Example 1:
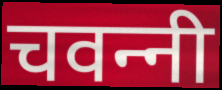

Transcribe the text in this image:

चवन्नी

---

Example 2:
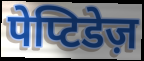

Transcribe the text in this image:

पेप्टिडेज़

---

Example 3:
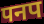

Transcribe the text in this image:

पनप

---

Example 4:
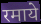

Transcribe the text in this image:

रमाये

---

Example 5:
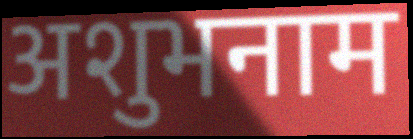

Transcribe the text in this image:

अशुभनाम